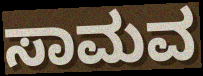
ಸಾಮವ